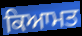
ਕਿਆਮਤ